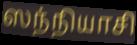
ஸந்நியாசி